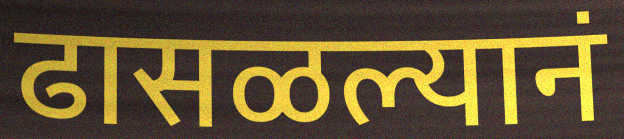
ढासळल्यानं